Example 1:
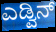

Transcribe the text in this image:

ಎಡ್ವಿನ್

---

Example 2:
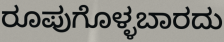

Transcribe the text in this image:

ರೂಪುಗೊಳ್ಳಬಾರದು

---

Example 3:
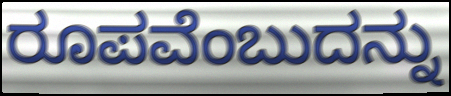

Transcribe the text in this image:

ರೂಪವೆಂಬುದನ್ನು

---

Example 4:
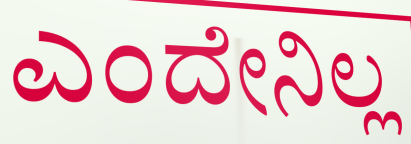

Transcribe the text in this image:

ಎಂದೇನಿಲ್ಲ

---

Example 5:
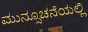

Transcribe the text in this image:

ಮುನ್ಸೂಚನೆಯಲ್ಲಿ